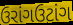
ઉરાંગઉટાંગ